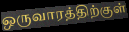
ஒருவாரத்திற்குள்